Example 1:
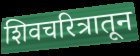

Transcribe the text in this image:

शिवचरित्रातून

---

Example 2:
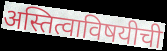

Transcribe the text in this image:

अस्तित्वाविषयीची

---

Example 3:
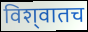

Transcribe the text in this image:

विश्वातच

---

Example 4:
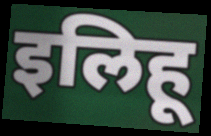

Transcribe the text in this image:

इलिहू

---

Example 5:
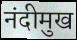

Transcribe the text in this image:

नंदीमुख